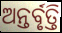
ଅନ୍ତର୍ବୃତ୍ତି